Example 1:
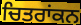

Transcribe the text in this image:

ਚਿਤਰਾਂਕਨ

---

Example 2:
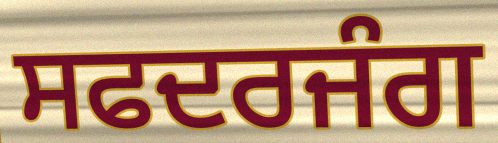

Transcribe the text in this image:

ਸਫਦਰਜੰਗ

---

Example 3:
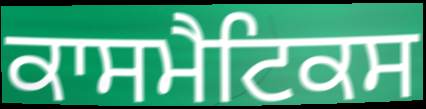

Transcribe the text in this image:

ਕਾਸਮੈਟਿਕਸ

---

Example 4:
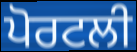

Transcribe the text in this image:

ਪੋਰਟਲੀ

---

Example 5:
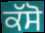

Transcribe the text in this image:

ਕੱਸੋ